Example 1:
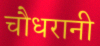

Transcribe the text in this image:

चौधरानी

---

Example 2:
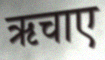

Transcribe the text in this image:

ऋचाए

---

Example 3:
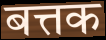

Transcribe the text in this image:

बत्तक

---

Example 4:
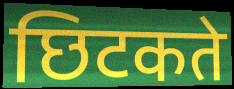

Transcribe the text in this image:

छिटकते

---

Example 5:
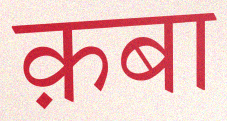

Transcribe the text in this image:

क़बा